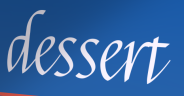
dessert